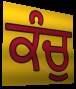
ਕੰਚੁ